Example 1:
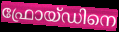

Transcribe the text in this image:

ഫ്രോയ്ഡിനെ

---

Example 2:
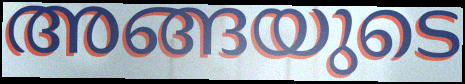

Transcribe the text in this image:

അങ്ങയുടെ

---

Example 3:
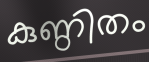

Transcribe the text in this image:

കുണ്ഠിതം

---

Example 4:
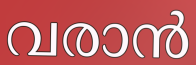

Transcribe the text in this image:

വരാൻ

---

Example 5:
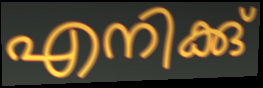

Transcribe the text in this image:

എനിക്കു്